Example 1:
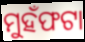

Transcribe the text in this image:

ମୁହଁଫଟା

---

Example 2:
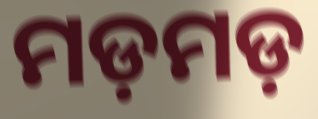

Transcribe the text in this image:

ମଡ଼ମଡ଼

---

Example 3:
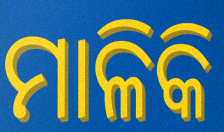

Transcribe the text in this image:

ମାଳିକି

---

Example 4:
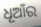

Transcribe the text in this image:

ଧୂଆଁର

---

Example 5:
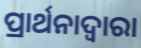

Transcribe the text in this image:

ପ୍ରାର୍ଥନାଦ୍ଵାରା